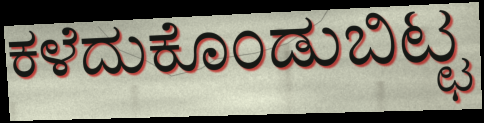
ಕಳೆದುಕೊಂಡುಬಿಟ್ಟ